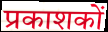
प्रकाशकों